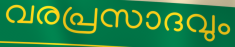
വരപ്രസാദവും